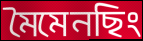
মৈমেনছিং